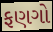
ફણગો